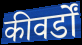
कीवर्डों